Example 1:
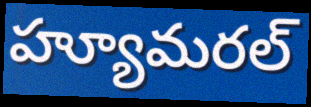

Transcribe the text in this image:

హ్యూమరల్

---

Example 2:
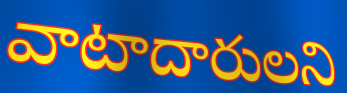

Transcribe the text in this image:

వాటాదారులని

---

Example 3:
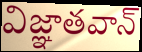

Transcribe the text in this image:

విజ్ఞాతవాన్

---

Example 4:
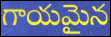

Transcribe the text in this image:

గాయమైన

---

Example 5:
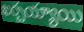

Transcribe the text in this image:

ఖర్చయ్యాయి